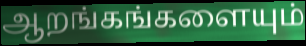
ஆறங்கங்களையும்